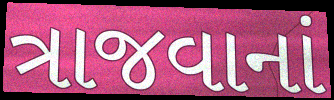
ત્રાજવાનાં